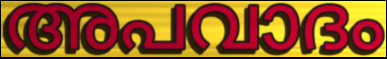
അപവാദം